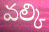
వల్కి